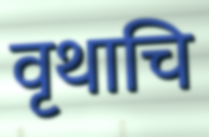
वृथाचि